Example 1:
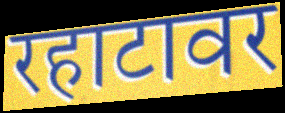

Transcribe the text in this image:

रहाटावर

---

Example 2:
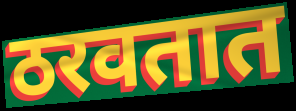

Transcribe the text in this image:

ठरवतात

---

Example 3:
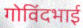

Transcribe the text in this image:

गोविंदभाई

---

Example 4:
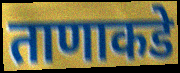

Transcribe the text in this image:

ताणाकडे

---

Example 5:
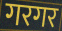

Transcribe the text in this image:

गरगर